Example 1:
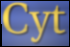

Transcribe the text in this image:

Cyt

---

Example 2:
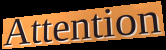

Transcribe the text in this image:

Attention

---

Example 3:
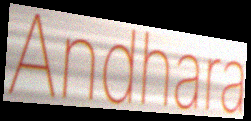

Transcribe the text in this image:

Andhara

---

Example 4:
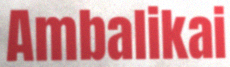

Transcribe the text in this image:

Ambalikai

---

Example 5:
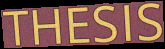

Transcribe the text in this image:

THESIS